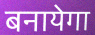
बनायेगा